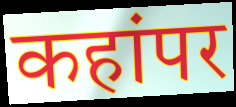
कहांपर